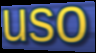
uso